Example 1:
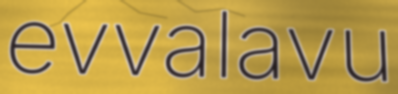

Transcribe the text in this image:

evvalavu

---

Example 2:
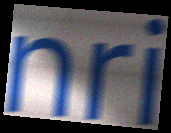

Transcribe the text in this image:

nri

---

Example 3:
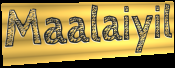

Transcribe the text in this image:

Maalaiyil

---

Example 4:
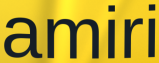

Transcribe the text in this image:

amiri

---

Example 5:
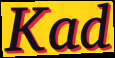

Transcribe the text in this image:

Kad